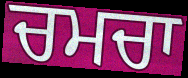
ਚਮਚਾ